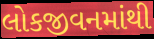
લોકજીવનમાંથી